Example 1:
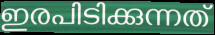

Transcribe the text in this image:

ഇരപിടിക്കുന്നത്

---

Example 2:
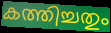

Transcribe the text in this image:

കത്തിച്ചതും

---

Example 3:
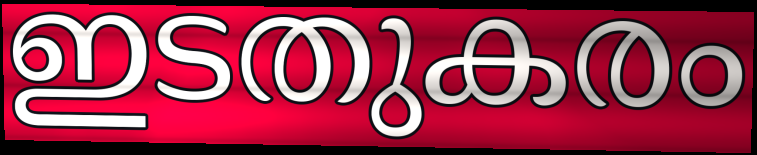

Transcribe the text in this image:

ഇടതുകരം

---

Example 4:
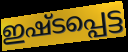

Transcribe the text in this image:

ഇഷ്ടപ്പെട്ട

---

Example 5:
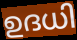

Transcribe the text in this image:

ഉദധി